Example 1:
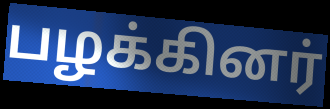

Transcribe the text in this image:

பழக்கினர்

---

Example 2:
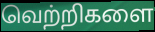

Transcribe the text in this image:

வெற்றிகளை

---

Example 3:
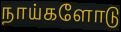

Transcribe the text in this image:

நாய்களோடு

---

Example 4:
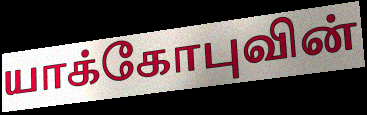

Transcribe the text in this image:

யாக்கோபுவின்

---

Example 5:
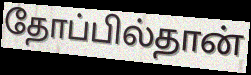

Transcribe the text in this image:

தோப்பில்தான்